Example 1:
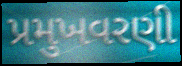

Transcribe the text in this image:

પ્રમુખવરણી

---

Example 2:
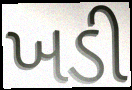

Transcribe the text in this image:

ખડી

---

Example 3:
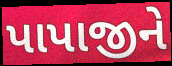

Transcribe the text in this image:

પાપાજીને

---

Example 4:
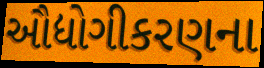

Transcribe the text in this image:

ઔદ્યોગીકરણના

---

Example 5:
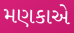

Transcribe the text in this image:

મણકાએ